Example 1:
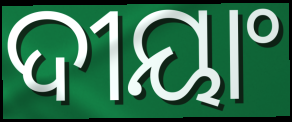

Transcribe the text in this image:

ଦୀୟାଂ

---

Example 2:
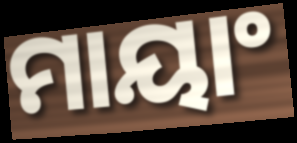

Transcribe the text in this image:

ମାୟାଂ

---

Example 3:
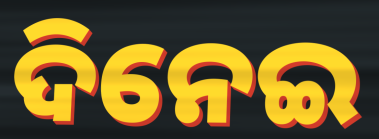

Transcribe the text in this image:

ଦିନେଇ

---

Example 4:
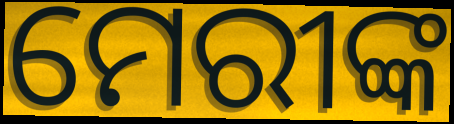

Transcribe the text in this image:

ମେରୀଙ୍କ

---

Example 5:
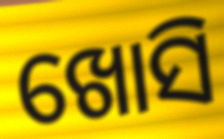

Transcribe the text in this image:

ଖୋସି